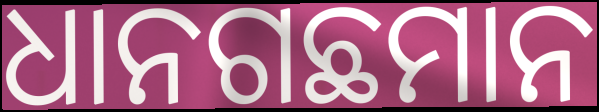
ଧାନଗଛମାନ